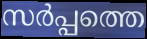
സർപ്പത്തെ